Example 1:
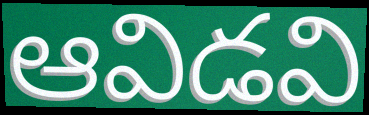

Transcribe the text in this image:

ఆవిడవి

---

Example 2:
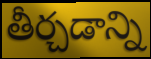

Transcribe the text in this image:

తీర్చడాన్ని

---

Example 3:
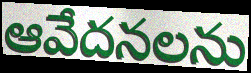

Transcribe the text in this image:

ఆవేదనలను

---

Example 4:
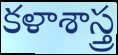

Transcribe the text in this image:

కళాశాస్త్ర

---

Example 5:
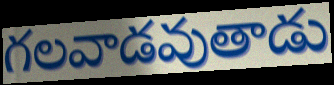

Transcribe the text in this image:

గలవాడవుతాడు